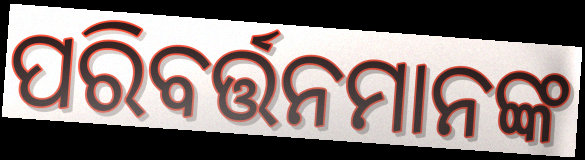
ପରିବର୍ତ୍ତନମାନଙ୍କ